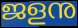
ജളനു